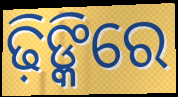
ଢ଼ିଙ୍କିରେ